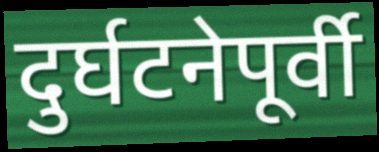
दुर्घटनेपूर्वी